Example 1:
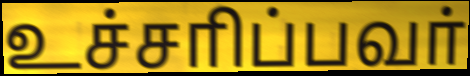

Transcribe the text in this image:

உச்சரிப்பவர்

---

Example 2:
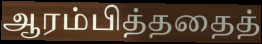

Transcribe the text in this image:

ஆரம்பித்ததைத்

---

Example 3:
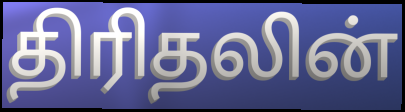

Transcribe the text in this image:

திரிதலின்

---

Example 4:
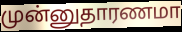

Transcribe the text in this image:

முன்னுதாரணமா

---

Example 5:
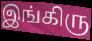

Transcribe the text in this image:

இங்கிரு